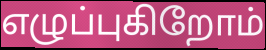
எழுப்புகிறோம்